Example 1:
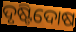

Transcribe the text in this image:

ଦୃଷ୍ଟିଦୋଷ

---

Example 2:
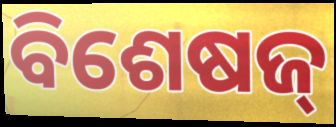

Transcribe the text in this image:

ବିଶେଷଜ୍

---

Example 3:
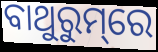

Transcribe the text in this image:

ବାଥୁରୁମ୍‌ରେ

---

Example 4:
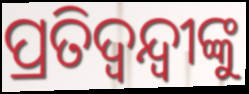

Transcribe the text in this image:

ପ୍ରତିଦ୍ଵନ୍ଦ୍ୱୀଙ୍କୁ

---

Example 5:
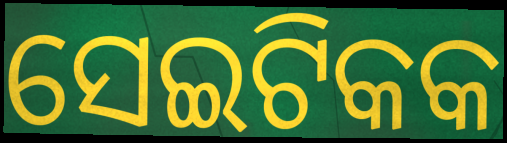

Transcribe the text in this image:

ସେଇଟିକକ